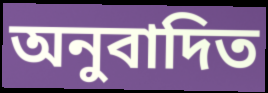
অনুবাদিত